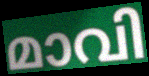
മാവി